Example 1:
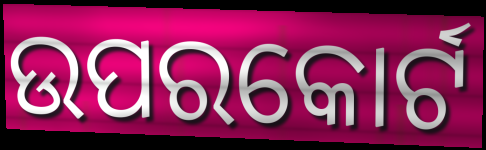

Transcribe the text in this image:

ଉପରକୋର୍ଟ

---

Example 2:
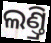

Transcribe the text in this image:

ଲଣ୍ତ୍ରି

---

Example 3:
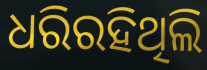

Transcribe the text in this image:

ଧରିରହିଥିଲି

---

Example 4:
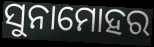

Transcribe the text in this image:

ସୁନାମୋହର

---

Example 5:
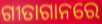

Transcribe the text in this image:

ଗୀତାଗାନରେ